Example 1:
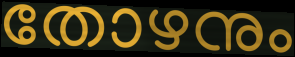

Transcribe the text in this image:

തോഴനും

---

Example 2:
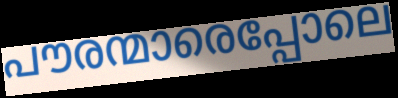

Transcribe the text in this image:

പൗരന്മാരെപ്പോലെ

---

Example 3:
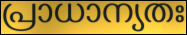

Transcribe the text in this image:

പ്രാധാന്യതഃ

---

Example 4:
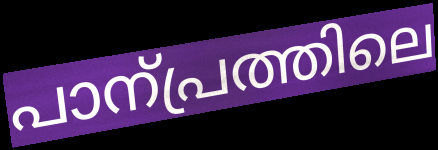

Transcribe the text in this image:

പാന്പ്രത്തിലെ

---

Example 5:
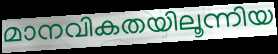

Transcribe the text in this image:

മാനവികതയിലൂന്നിയ